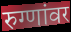
रुग्णांवर